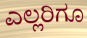
ಎಲ್ಲರಿಗೂ